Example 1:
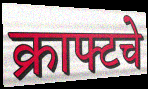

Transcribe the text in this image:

क्राफ्टचे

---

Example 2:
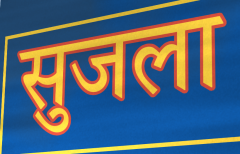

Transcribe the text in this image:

सुजला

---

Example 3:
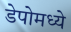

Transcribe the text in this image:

डेपोमध्ये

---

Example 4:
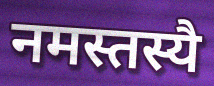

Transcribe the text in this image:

नमस्तस्यै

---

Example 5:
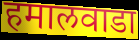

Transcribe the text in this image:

हमालवाडा